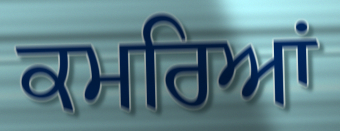
ਕਮਰਿਆਂ